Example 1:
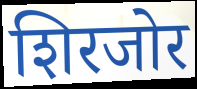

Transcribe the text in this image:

शिरजोर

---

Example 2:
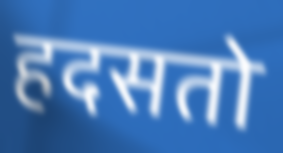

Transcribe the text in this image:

हदसतो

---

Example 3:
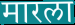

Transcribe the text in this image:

मारला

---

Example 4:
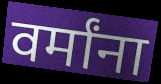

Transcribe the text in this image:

वर्मांना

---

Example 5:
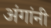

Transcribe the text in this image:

अंगांनी